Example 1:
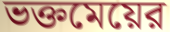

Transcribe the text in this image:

ভক্তমেয়ের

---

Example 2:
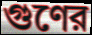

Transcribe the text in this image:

গুণের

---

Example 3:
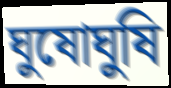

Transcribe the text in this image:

ঘুষোঘুষি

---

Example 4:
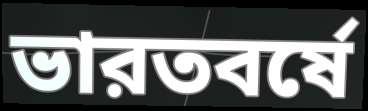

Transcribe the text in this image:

ভারতবর্ষে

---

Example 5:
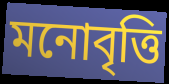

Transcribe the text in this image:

মনোবৃত্তি